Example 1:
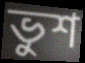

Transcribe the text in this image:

ভুশ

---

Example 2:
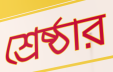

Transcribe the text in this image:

শ্রেষ্ঠার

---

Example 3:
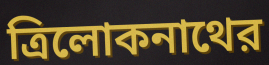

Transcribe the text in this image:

ত্রিলোকনাথের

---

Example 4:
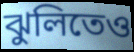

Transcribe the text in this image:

ঝুলিতেও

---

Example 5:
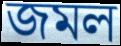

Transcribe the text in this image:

জমল